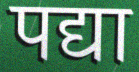
पद्या